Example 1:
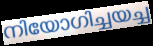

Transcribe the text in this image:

നിയോഗിച്ചയച്ച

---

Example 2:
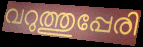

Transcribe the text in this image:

വറുത്തുപ്പേരി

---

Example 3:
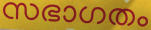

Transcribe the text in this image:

സഭാഗതം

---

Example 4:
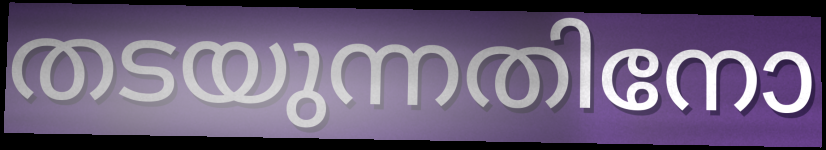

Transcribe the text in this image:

തടയുന്നതിനോ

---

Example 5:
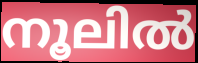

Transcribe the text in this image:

നൂലിൽ